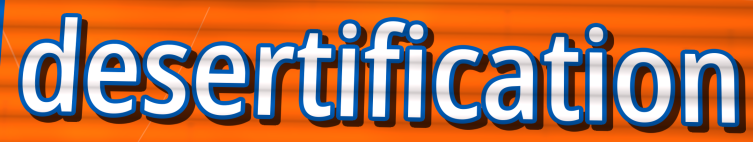
desertification